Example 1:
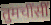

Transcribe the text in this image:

तुमचींसीं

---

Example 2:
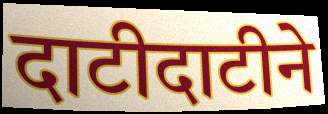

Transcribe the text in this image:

दाटीदाटीने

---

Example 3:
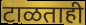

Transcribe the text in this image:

टाळताही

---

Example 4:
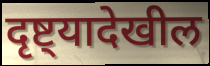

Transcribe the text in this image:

दृष्ट्यादेखील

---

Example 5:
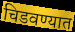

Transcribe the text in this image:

चिडवण्यात